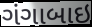
ગંગાબાઇ